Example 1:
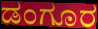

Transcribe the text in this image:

ಡಂಗೂರ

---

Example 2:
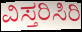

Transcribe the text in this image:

ವಿಸ್ತರಿಸಿರಿ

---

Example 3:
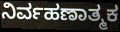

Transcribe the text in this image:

ನಿರ್ವಹಣಾತ್ಮಕ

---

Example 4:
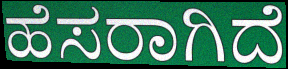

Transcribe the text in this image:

ಹೆಸರಾಗಿದೆ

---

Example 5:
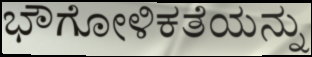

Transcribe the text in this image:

ಭೌಗೋಳಿಕತೆಯನ್ನು